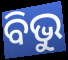
ବିଭୁ